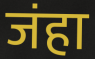
जंहा